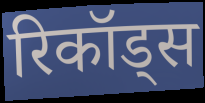
रिकॉड्स